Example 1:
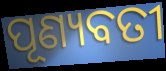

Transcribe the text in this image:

ପୂଣ୍ୟବତୀ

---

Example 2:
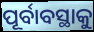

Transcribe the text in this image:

ପୂର୍ବାବସ୍ଥାକୁ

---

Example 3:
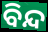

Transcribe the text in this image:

ବିନ୍ଦ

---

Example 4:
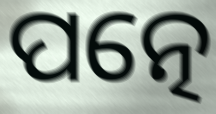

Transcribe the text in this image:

ପତ୍ନେ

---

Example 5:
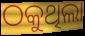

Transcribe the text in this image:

ଠକୁଥିଲା